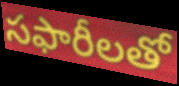
సఫారీలతో